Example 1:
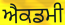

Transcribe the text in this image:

ਐਕਡਮੀ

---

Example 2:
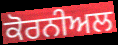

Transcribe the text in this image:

ਕੋਰਨੀਅਲ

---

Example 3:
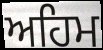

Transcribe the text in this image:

ਅਹਿਮ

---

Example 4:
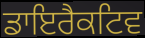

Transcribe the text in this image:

ਡਾਇਰੈਕਟਿਵ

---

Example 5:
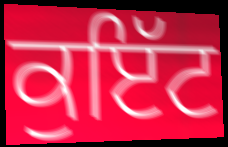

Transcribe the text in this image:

ਕੁਇੱਟ